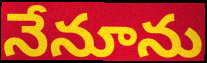
నేనూను